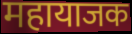
महायाजक